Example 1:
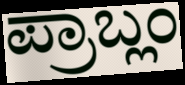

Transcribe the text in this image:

ಪ್ರಾಬ್ಲಂ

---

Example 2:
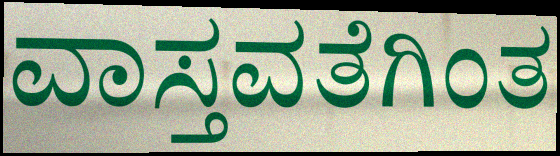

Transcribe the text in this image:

ವಾಸ್ತವತೆಗಿಂತ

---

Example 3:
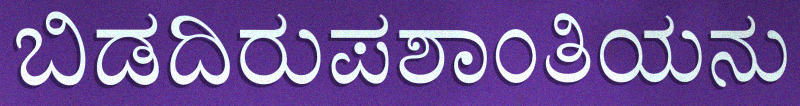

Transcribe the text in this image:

ಬಿಡದಿರುಪಶಾಂತಿಯನು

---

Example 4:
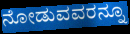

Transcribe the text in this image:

ನೋಡುವವರನ್ನೂ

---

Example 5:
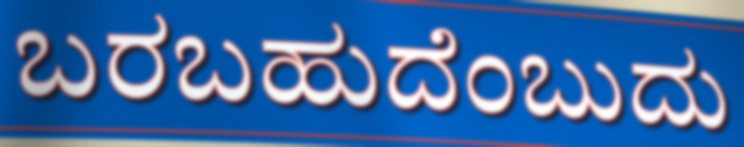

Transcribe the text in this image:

ಬರಬಹುದೆಂಬುದು